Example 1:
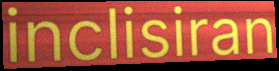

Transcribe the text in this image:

inclisiran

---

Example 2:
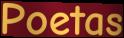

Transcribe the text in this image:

Poetas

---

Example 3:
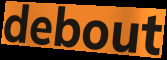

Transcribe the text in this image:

debout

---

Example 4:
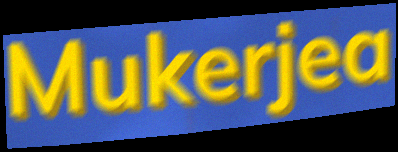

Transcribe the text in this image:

Mukerjea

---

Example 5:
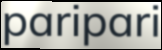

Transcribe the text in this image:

paripari